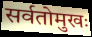
सर्वतोमुखः